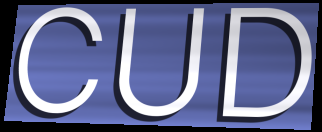
CUD